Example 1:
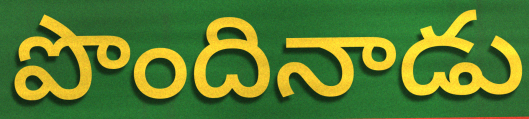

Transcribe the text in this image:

పొందినాడు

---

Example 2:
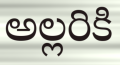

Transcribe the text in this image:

అల్లరికి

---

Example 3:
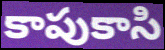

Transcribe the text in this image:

కాపుకాసి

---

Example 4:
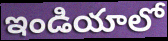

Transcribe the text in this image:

ఇండియాలో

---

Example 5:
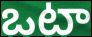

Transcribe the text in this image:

ఒటా